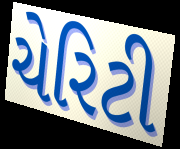
ચેરિટી